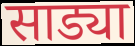
साड्या